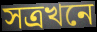
সত্ৰখনে